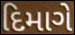
દિમાગે